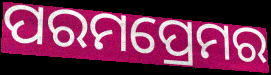
ପରମପ୍ରେମର